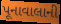
પૂનાવાલાની